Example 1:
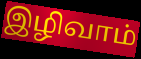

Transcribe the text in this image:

இழிவாம்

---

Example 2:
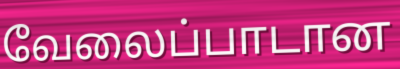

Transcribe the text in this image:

வேலைப்பாடான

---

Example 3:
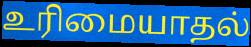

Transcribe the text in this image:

உரிமையாதல்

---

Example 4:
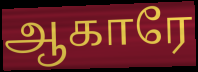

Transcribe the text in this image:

ஆகாரே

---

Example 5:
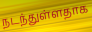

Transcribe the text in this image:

நடந்துள்ளதாக